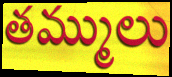
తమ్ములు